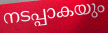
നടപ്പാകയും